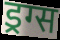
ड्रग्स